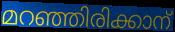
മറഞ്ഞിരിക്കാന്